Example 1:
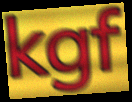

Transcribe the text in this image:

kgf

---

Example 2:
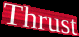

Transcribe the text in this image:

Thrust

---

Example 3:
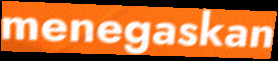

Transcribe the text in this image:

menegaskan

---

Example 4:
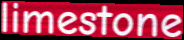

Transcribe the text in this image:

limestone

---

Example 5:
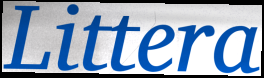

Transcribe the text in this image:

Littera